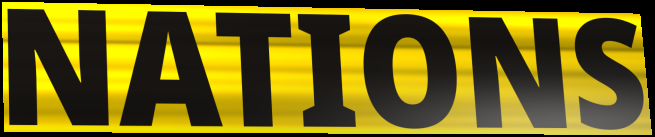
NATIONS